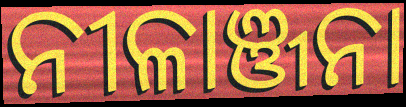
ନୀଳାଞ୍ଜନା